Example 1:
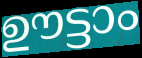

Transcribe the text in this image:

ഊട്ടാം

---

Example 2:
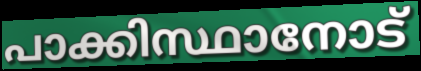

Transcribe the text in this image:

പാക്കിസ്ഥാനോട്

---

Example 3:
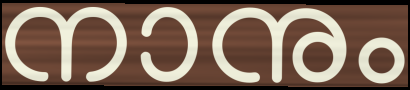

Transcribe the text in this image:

നാനും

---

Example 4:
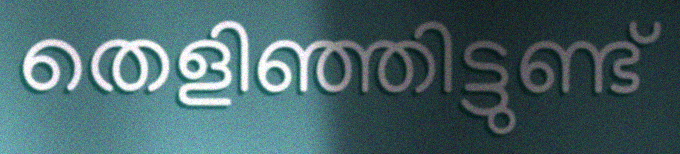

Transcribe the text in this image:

തെളിഞ്ഞിട്ടുണ്ട്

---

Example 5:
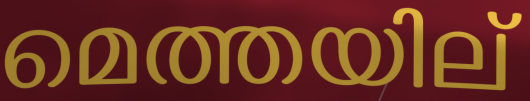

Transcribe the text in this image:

മെത്തയില്